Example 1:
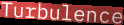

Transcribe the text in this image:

Turbulence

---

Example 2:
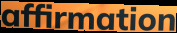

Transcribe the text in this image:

affirmation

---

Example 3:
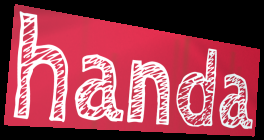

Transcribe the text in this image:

handa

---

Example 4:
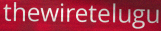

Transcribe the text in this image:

thewiretelugu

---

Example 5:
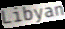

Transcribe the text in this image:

Libyan